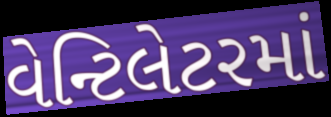
વેન્ટિલેટરમાં